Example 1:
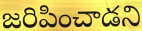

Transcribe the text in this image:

జరిపించాడని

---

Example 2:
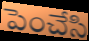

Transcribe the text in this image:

పెంచేసి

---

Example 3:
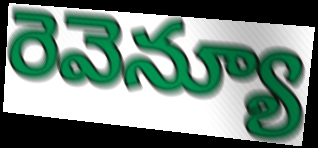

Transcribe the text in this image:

రెవెన్యూ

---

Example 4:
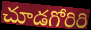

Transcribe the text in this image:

చూడగోరిరి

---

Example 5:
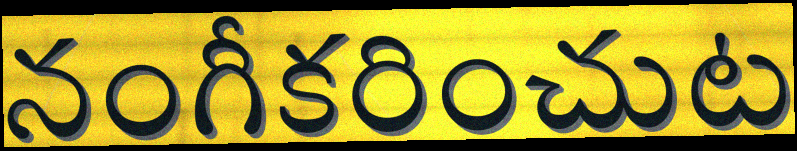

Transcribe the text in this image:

నంగీకరించుట